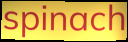
spinach